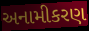
અનામીકરણ